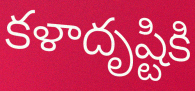
కళాదృష్టికి